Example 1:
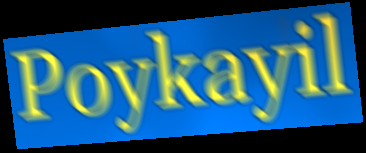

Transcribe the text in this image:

Poykayil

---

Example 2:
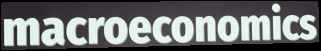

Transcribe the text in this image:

macroeconomics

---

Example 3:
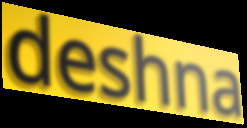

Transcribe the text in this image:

deshna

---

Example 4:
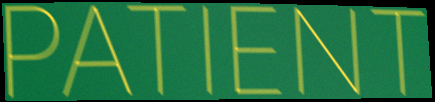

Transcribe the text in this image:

PATIENT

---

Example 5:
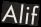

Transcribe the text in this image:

Alif